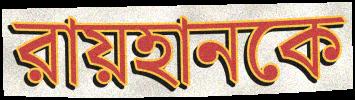
রায়হানকে